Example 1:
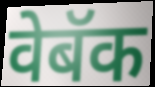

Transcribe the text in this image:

वेबॅक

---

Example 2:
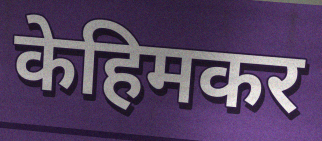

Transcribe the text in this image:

केहिमकर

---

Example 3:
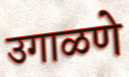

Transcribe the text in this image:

उगाळणे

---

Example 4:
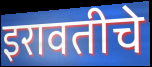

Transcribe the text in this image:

इरावतीचे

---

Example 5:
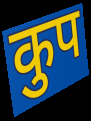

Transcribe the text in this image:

कुप